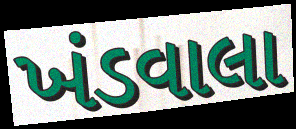
ખંડવાલા